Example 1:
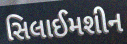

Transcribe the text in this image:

સિલાઈમશીન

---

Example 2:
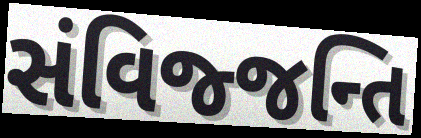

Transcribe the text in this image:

સંવિજ્જન્તિ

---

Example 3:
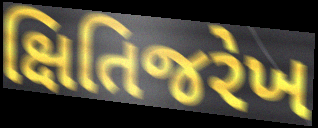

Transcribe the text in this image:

ક્ષિતિજરેખ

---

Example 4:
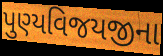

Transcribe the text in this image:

પુણ્યવિજયજીના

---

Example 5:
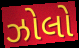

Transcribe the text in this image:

ઝોલો